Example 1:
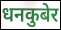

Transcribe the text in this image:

धनकुबेर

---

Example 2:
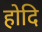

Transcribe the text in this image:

होदि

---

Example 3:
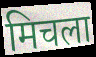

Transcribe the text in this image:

मिचला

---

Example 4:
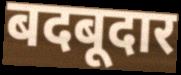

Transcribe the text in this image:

बदबूदार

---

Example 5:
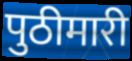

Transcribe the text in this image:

पुठीमारी